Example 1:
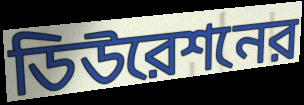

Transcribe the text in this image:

ডিউরেশনের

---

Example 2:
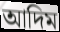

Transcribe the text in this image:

আদিম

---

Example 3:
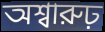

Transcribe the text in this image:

অশ্বারুঢ়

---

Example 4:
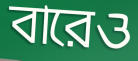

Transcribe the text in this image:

বারেও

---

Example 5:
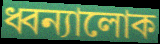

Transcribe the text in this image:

ধ্বন্যালোক